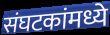
संघटकांमध्ये